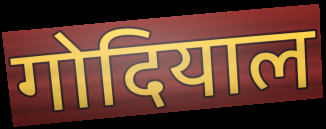
गोदियाल